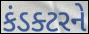
કંડક્ટરને